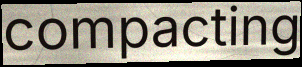
compacting